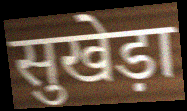
सुखेड़ा